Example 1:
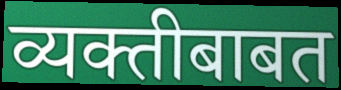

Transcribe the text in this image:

व्यक्तीबाबत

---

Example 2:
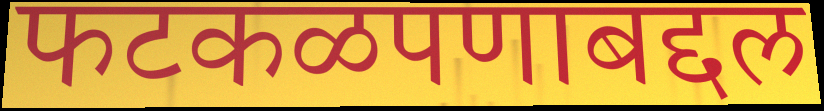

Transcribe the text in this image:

फटकळपणाबद्दल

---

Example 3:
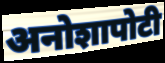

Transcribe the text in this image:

अनोशापोटी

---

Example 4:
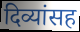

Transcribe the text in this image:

दिव्यांसह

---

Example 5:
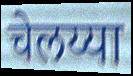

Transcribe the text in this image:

चेलय्या